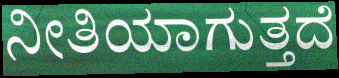
ನೀತಿಯಾಗುತ್ತದೆ